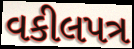
વકીલપત્ર